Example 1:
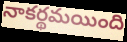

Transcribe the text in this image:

నాకర్థమయింది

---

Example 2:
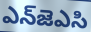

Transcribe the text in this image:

ఎన్‌జెఎసి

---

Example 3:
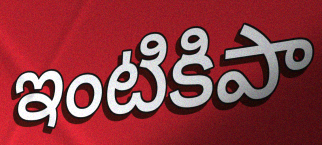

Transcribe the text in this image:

ఇంటికిపా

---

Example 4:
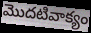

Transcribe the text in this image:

మొదటివాక్యం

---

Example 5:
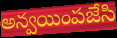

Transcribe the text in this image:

అన్వయింపజేసి